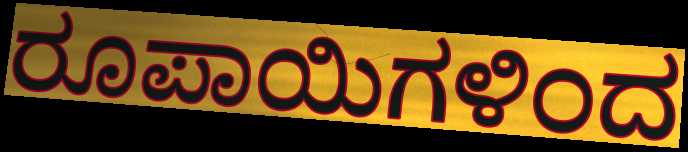
ರೂಪಾಯಿಗಳಿಂದ